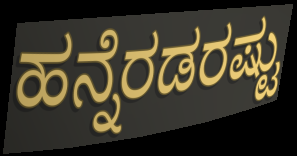
ಹನ್ನೆರಡರಷ್ಟು